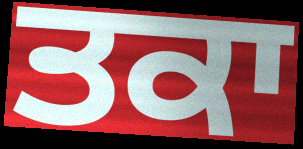
ਤਕਾ